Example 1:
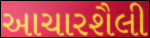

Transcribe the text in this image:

આચારશૈલી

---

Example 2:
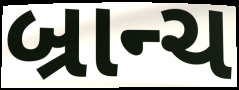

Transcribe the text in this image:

બ્રાન્ચ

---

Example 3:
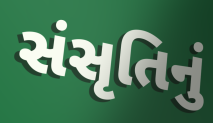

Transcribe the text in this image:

સંસૃતિનું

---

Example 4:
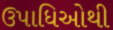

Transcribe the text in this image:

ઉપાધિઓથી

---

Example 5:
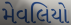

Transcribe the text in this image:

મેવલિયો